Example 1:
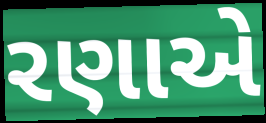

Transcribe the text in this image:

રણાએ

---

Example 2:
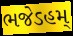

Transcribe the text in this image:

ભજેઽહમ્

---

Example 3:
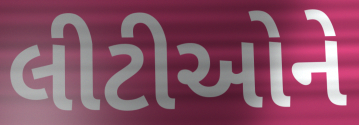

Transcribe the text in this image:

લીટીઓને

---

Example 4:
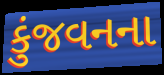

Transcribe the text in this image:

કુંજવનના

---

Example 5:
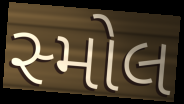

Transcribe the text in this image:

સ્મોલ